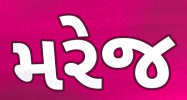
મરેજ